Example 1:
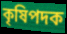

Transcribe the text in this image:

কৃষিপদক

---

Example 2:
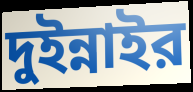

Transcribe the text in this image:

দুইন্নাইর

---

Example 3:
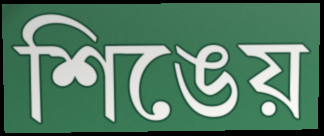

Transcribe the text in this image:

শিঙেয়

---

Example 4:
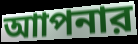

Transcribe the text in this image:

আাপনার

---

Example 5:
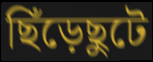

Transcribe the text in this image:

ছিঁড়েছুটে